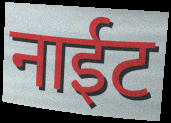
नाईट